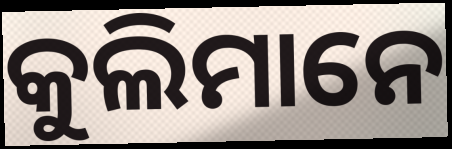
କୁଲିମାନେ